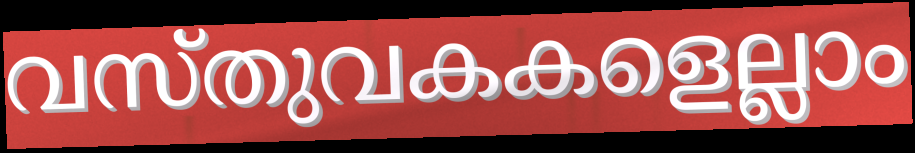
വസ്തുവകകളെല്ലാം